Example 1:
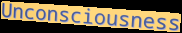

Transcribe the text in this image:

Unconsciousness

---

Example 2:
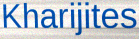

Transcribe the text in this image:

Kharijites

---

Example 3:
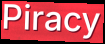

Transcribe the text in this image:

Piracy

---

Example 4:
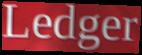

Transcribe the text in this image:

Ledger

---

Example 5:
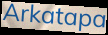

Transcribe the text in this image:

Arkatapa